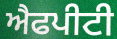
ਐਫਪੀਟੀ